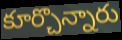
కూర్చొన్నారు